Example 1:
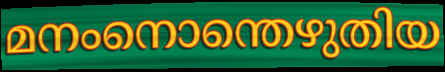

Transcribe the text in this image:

മനംനൊന്തെഴുതിയ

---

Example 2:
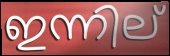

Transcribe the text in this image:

ഇന്നില്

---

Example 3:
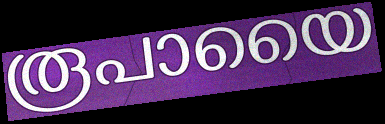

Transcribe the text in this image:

രൂപായൈ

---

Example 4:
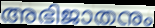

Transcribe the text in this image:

അഭിജാതനും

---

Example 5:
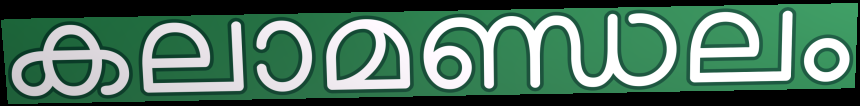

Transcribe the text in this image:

കലാമണ്ഡലം